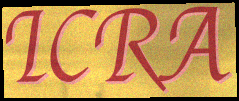
ICRA